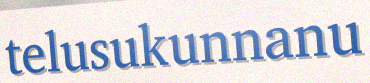
telusukunnanu